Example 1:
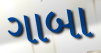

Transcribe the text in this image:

ગાબા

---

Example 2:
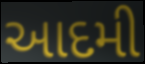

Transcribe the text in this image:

આદમી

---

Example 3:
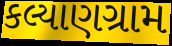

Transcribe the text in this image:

કલ્યાણગ્રામ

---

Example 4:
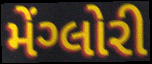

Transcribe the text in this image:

મેંગ્લોરી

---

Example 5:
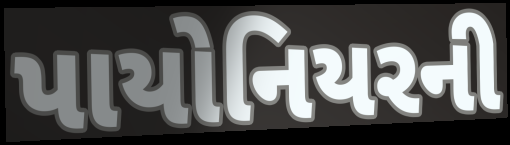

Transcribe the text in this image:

પાયોનિયરની